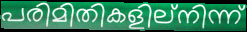
പരിമിതികളില്നിന്ന്